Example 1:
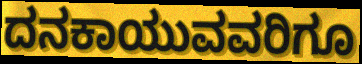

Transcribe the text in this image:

ದನಕಾಯುವವರಿಗೂ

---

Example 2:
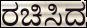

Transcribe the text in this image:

ರಚಿಸಿದ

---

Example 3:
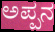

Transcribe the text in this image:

ಅಪ್ಪನ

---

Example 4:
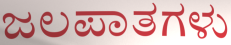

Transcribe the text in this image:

ಜಲಪಾತಗಳು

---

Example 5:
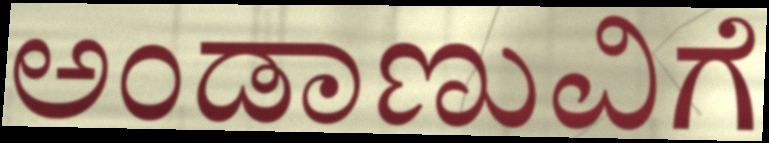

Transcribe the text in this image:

ಅಂಡಾಣುವಿಗೆ